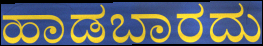
ಹಾಡಬಾರದು